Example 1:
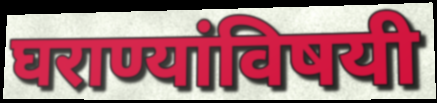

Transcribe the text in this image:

घराण्यांविषयी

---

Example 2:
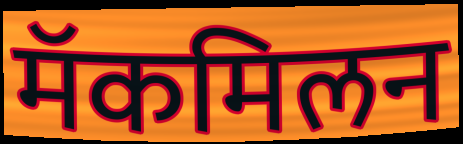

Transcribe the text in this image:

मॅकमिलन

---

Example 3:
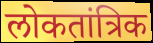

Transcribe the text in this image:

लोकतांत्रिक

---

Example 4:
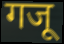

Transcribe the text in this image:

गजू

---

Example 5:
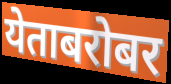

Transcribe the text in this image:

येताबरोबर